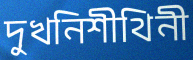
দুখনিশীথিনী